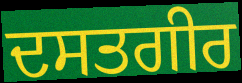
ਦਸਤਗੀਰ